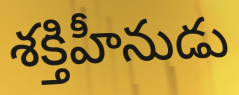
శక్తిహీనుడు